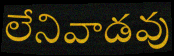
లేనివాడవు